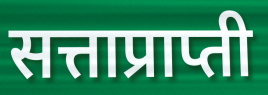
सत्ताप्राप्ती